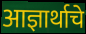
आज्ञार्थाचे